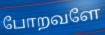
போறவளே